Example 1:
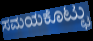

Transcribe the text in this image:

ಸಮಯಕೊಟ್ಟು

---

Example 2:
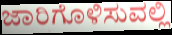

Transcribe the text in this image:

ಜಾರಿಗೊಳಿಸುವಲ್ಲಿ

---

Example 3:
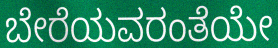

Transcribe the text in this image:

ಬೇರೆಯವರಂತೆಯೇ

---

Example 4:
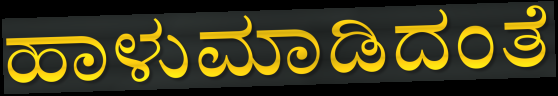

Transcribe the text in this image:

ಹಾಳುಮಾಡಿದಂತೆ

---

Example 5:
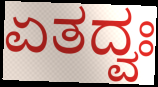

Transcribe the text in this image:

ಏತದ್ವಃ